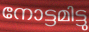
നോട്ടമിട്ടു